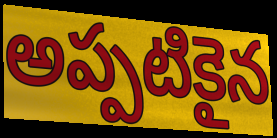
అప్పటికైన